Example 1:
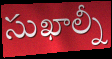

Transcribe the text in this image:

సుఖాల్నీ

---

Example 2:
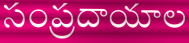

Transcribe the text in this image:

సంప్రదాయాల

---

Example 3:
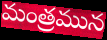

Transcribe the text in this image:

మంత్రమున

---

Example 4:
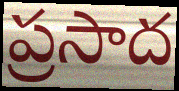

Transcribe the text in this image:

ప్రసాద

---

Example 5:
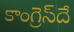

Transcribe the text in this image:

కాంగ్రెస్‌దే